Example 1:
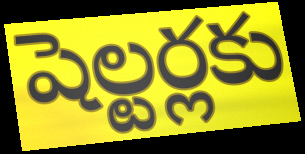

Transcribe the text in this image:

షెల్టర్లకు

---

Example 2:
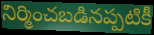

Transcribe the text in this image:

నిర్మించబడినప్పటికీ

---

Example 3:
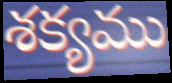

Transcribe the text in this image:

శక్యము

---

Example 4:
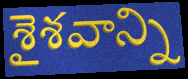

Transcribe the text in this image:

శైశవాన్ని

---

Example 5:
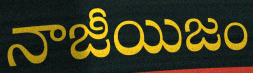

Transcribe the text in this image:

నాజీయిజం